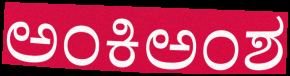
ಅಂಕಿಅಂಶ